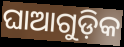
ଘାଆଗୁଡ଼ିକ